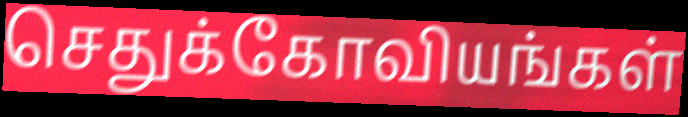
செதுக்கோவியங்கள்